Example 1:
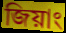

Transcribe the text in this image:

জিয়াং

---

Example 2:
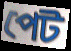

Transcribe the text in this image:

পেট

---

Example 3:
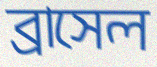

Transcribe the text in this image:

ব্রাসেল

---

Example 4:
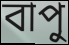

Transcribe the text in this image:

বাপু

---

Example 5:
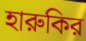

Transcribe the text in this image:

হারুকির